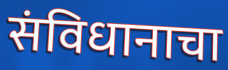
संविधानाचा